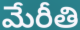
మేరీతి